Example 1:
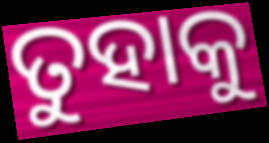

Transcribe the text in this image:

ତୁହାକୁ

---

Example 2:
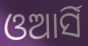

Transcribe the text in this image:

ଓଆର୍ସି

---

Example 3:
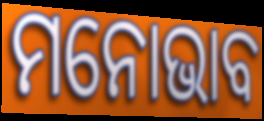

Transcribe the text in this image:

ମନୋଭାବ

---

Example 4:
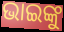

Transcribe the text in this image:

ଭାଇଙ୍କୁ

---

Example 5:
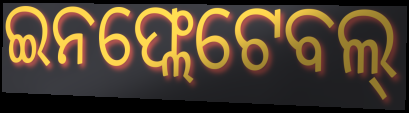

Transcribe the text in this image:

ଇନଫ୍ଲେଟେବଲ୍